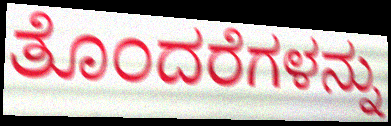
ತೊಂದರೆಗಳನ್ನು